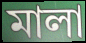
মালা